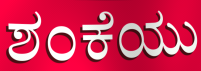
ಶಂಕೆಯು